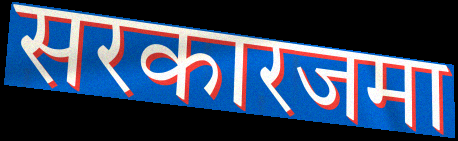
सरकारजमा